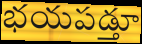
భయపడ్తూ